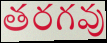
తరగవు